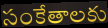
సంకేతాలకు